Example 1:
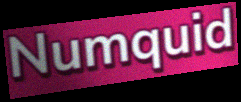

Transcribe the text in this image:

Numquid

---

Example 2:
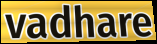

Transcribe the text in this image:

vadhare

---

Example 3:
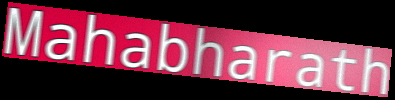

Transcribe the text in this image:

Mahabharath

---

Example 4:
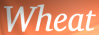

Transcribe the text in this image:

Wheat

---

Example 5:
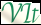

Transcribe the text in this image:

VIt